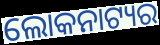
ଲୋକନାଟ୍ୟର